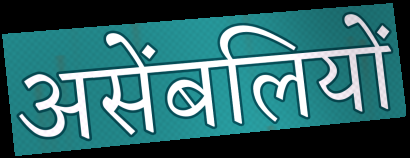
असेंबलियों